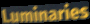
Luminaries